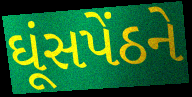
ઘૂંસપેંઠને